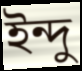
ইন্দু